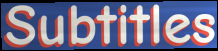
Subtitles